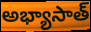
అభ్యాసాత్